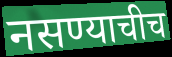
नसण्याचीच